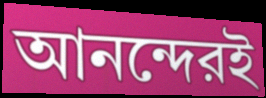
আনন্দেরই